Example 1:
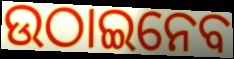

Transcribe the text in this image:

ଉଠାଇନେବ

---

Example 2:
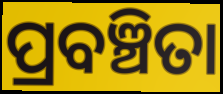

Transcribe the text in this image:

ପ୍ରବଞ୍ଚିତା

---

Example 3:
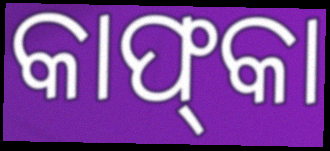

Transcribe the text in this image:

କାଫ୍‌କା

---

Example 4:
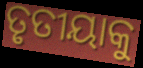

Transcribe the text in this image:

ତୃତୀୟାକୁ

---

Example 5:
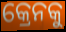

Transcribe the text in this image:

କ୍ରେନକୁ